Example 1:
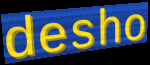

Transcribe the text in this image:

desho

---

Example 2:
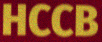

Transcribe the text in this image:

HCCB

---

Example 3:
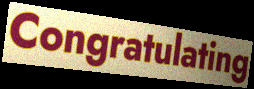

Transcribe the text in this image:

Congratulating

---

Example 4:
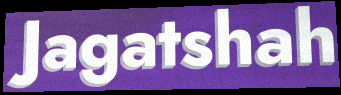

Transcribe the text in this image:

Jagatshah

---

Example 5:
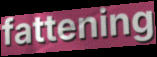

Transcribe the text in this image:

fattening